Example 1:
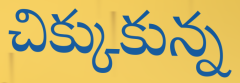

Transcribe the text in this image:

చిక్కుకున్న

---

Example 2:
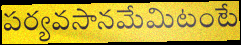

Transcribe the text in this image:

పర్యవసానమేమిటంటే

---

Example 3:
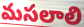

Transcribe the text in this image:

మసలాలి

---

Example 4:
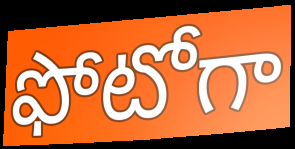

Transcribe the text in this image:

ఫోటోగా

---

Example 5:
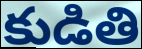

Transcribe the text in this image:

కుడితి